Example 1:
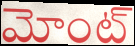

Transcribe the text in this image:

మోంట్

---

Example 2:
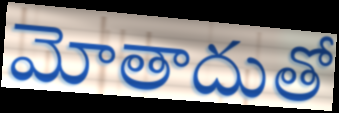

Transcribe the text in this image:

మోతాదుతో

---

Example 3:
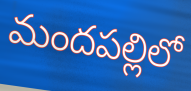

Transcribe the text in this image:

మందపల్లిలో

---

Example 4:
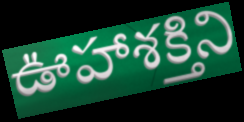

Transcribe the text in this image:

ఊహాశక్తిని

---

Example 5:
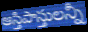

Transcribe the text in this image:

ఆస్తిపాస్తులన్నీ